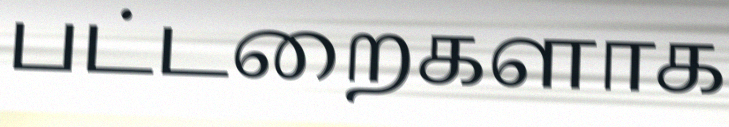
பட்டறைகளாக